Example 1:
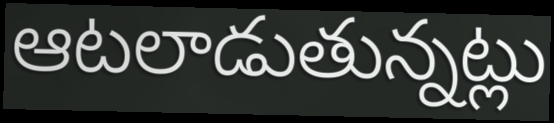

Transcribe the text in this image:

ఆటలాడుతున్నట్లు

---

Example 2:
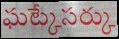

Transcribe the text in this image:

ఘట్కేసర్కు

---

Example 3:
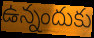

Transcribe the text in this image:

ఉన్నందుకు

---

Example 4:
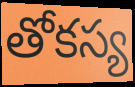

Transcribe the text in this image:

తోకస్య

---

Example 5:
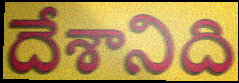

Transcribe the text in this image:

దేశానిది